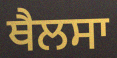
ਥੈਲਸਾ